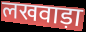
लखवाड़ा